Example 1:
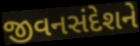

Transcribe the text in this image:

જીવનસંદેશને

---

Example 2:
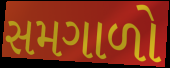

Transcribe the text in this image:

સમગાળો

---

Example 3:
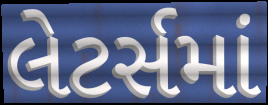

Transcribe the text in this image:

લેટર્સમાં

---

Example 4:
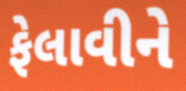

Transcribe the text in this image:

ફેલાવીને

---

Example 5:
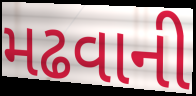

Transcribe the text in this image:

મઢવાની